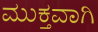
ಮುಕ್ತವಾಗಿ